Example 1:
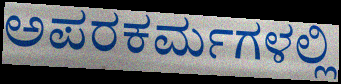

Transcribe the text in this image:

ಅಪರಕರ್ಮಗಳಲ್ಲಿ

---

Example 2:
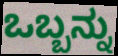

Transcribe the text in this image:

ಒಬ್ಬನ್ನು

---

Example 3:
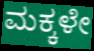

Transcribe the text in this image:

ಮಕ್ಕಳೇ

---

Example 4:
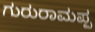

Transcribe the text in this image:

ಗುರುರಾಮಪ್ಪ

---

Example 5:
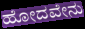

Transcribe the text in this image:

ಹೋದವೇನು